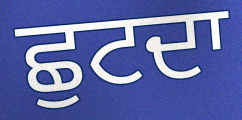
ਛੁਟਦਾ